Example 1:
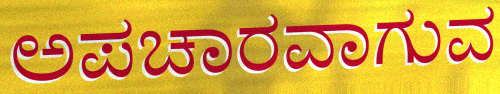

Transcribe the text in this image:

ಅಪಚಾರವಾಗುವ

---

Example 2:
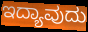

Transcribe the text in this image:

ಇದ್ಯಾವುದು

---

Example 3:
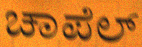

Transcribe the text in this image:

ಚಾಪೆಲ್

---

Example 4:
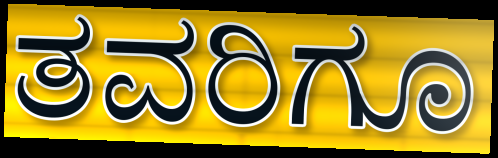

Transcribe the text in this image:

ತವರಿಗೂ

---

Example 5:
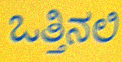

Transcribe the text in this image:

ಒತ್ತಿನಲಿ